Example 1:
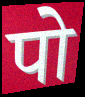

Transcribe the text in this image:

पो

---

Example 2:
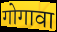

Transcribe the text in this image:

गोगावा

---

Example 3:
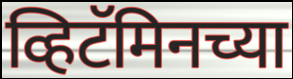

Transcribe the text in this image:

व्हिटॅमिनच्या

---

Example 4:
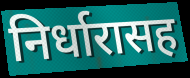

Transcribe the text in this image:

निर्धारासह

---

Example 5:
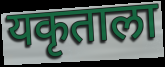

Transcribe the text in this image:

यकृताला